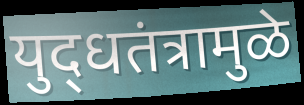
युद्धतंत्रामुळे